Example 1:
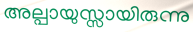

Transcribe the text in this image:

അല്പായുസ്സായിരുന്നു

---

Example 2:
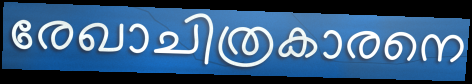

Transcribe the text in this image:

രേഖാചിത്രകാരനെ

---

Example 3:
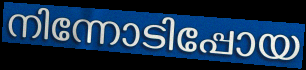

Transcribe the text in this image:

നിന്നോടിപ്പോയ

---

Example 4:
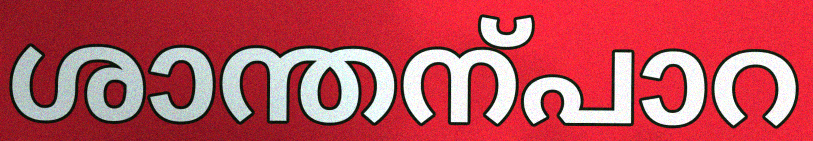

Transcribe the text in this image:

ശാന്തന്പാറ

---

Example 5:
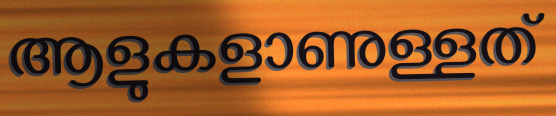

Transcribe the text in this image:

ആളുകളാണുള്ളത്